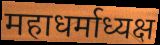
महाधर्माध्यक्ष